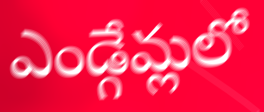
ఎండ్గేమ్లలో